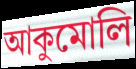
আকুমোলি